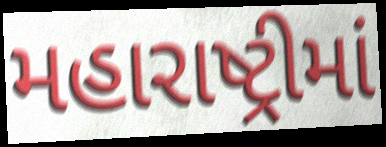
મહારાષ્ટ્રીમાં